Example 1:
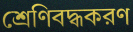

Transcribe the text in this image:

শ্রেণিবদ্ধকরণ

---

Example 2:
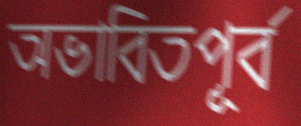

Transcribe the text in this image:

অভাবিতপূর্ব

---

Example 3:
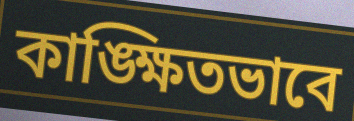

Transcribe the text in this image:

কাঙ্ক্ষিতভাবে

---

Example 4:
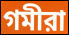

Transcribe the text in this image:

গমীরা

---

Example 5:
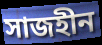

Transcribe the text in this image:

সাজহীন